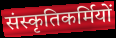
संस्कृतिकर्मियों